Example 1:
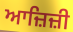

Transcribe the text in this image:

ਆਜ਼ਿਜ਼ੀ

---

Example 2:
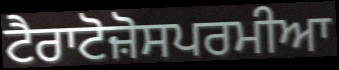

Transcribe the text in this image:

ਟੈਰਾਟੋਜ਼ੋਸਪਰਮੀਆ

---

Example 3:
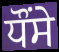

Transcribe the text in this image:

ਧੌਂਸੇ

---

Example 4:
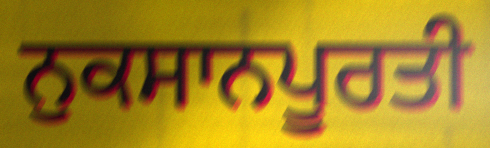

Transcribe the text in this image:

ਨੁਕਸਾਨਪੂਰਤੀ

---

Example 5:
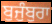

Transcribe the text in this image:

ਬੁਜੁੰਬੁਰਾ